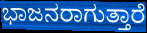
ಭಾಜನರಾಗುತ್ತಾರೆ